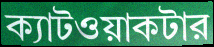
ক্যাটওয়াকটার